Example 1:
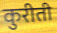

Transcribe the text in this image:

कुरीती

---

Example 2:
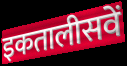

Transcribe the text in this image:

इकतालीसवें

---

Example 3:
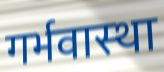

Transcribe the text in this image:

गर्भवास्था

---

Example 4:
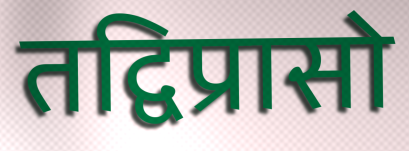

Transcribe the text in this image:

तद्विप्रासो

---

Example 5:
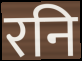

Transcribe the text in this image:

रनि